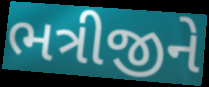
ભત્રીજીને